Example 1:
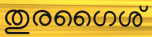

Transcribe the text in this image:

തുരഗൈശ്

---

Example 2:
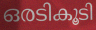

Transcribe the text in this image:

ഒരടികൂടി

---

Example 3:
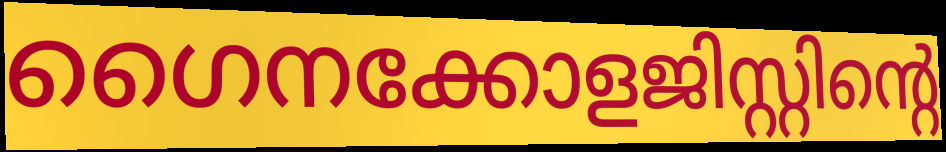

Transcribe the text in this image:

ഗൈനക്കോളജിസ്റ്റിന്റെ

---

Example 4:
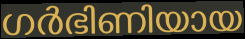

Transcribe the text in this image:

ഗർഭിണിയായ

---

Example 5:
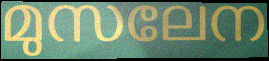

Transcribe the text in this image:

മുസലേന